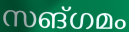
സങ്ഗമം